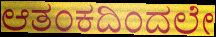
ಆತಂಕದಿಂದಲೇ